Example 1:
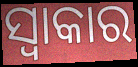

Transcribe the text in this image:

ସ୍ୱାକାର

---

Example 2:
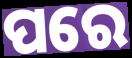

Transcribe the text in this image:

ପରେ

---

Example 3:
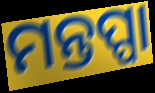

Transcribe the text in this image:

ମନ୍ତପ୍ପା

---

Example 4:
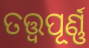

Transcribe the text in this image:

ତତ୍ତ୍ୱପୂର୍ଣ୍ଣ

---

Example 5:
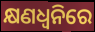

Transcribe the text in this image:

କ୍ଷଣଧ୍ୱନିରେ